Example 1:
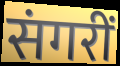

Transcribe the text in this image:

संगरीं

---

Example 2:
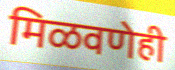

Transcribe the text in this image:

मिळवणेही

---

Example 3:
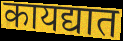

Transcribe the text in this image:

कायद्यात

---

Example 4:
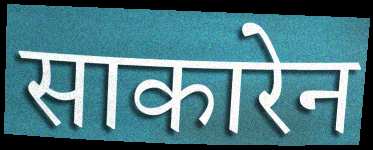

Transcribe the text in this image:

साकारेन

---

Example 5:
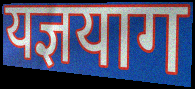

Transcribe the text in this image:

यज्ञयाग